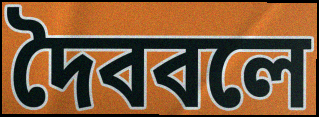
দৈববলে